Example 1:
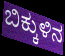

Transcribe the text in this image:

ಬಿಕ್ಕುಳಿನ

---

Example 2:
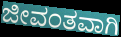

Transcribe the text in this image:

ಜೀವಂತವಾಗಿ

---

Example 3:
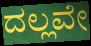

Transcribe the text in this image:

ದಲ್ಲವೇ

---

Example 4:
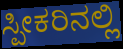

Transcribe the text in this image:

ಸ್ಪೀಕರಿನಲ್ಲಿ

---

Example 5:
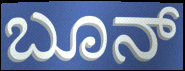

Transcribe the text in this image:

ಬೂನ್